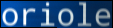
oriole